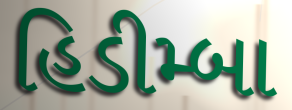
હિડીમ્બા